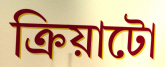
ক্ৰিয়াটো